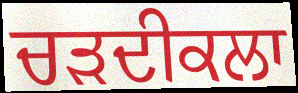
ਚੜਦੀਕਲਾ